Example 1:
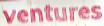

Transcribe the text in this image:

ventures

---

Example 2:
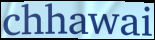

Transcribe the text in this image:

chhawai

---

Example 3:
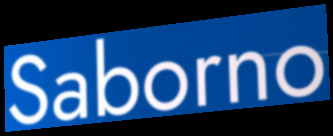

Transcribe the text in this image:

Saborno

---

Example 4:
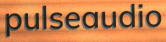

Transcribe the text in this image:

pulseaudio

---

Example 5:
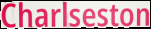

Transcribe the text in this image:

Charlseston